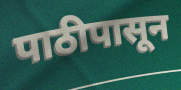
पाठीपासून